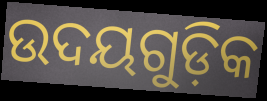
ଉଦୟଗୁଡ଼ିକ